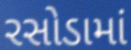
રસોડામાં